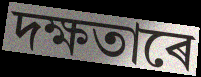
দক্ষতাৰে